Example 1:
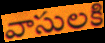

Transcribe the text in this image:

వాసులకి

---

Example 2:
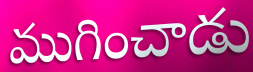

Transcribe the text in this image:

ముగించాడు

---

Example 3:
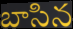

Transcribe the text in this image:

బాసిన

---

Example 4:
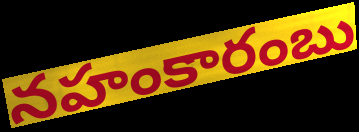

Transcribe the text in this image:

నహంకారంబు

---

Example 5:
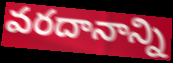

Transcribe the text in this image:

వరదానాన్ని